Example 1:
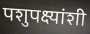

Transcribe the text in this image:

पशुपक्ष्यांशी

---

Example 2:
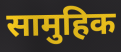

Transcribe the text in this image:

सामुहिक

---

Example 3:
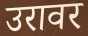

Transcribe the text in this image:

उरावर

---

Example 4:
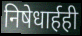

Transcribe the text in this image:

निषेधार्हही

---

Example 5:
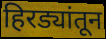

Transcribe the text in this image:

हिरड्यांतून